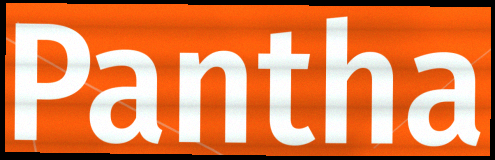
Pantha